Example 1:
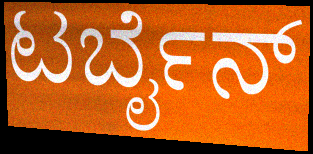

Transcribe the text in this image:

ಟರ್ಬೈನ್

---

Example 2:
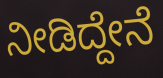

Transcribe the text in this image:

ನೀಡಿದ್ದೇನೆ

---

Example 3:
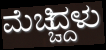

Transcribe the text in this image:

ಮೆಚ್ಚಿದ್ದಳು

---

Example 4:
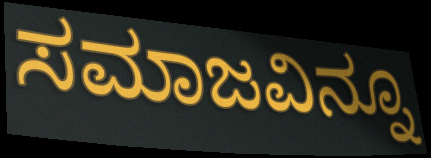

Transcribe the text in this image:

ಸಮಾಜವಿನ್ನೂ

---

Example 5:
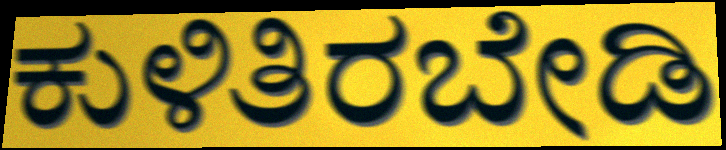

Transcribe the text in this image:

ಕುಳಿತಿರಬೇಡಿ